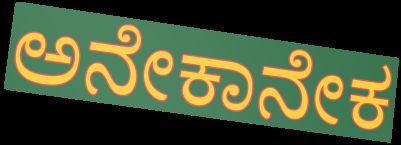
ಅನೇಕಾನೇಕ